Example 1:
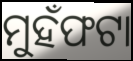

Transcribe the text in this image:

ମୁହଁଫଟା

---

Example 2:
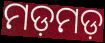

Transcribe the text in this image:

ମଡ଼ମଡ଼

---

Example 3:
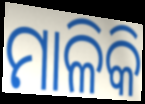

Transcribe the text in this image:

ମାଳିକି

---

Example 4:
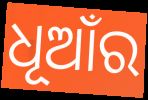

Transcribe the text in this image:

ଧୂଆଁର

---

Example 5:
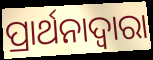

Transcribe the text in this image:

ପ୍ରାର୍ଥନାଦ୍ଵାରା